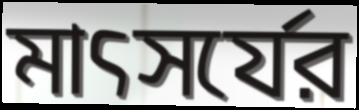
মাৎসর্যের